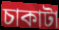
চাকাটা